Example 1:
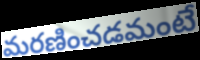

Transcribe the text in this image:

మరణించడమంటే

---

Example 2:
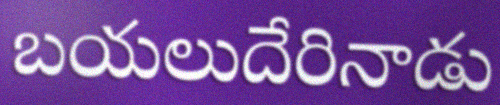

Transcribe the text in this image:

బయలుదేరినాడు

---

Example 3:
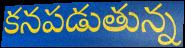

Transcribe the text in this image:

కనపడుతున్న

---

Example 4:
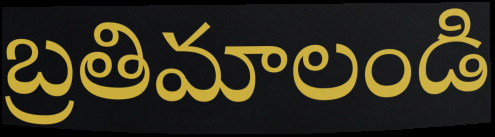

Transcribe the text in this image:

బ్రతిమాలండి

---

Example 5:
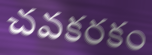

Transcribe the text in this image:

చవకరకం